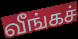
வீங்கச்